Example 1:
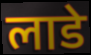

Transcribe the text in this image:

लाडे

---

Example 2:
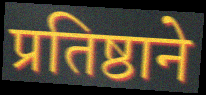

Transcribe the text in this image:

प्रतिष्ठाने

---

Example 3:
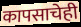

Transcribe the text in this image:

कापसाचेही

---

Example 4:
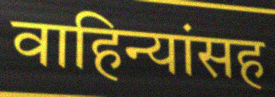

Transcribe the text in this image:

वाहिन्यांसह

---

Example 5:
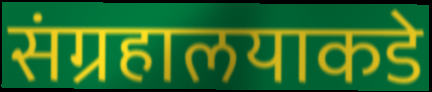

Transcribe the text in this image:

संग्रहालयाकडे